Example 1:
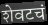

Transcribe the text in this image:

शेवटचं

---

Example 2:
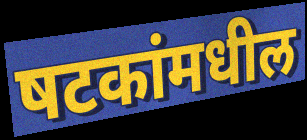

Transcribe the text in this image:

षटकांमधील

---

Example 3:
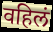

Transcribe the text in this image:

वहिलं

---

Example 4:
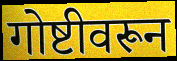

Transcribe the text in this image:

गोष्टीवरून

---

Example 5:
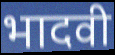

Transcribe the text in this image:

भादवी